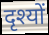
दृश्यों